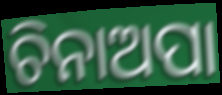
ଚିନାଅପା